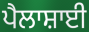
ਪੈਲਾਸ਼ਾਈ